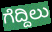
ಗೆದ್ದಿಲು